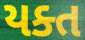
યક્ત